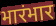
भारंभार